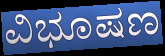
ವಿಭೂಷಣ